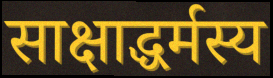
साक्षाद्धर्मस्य